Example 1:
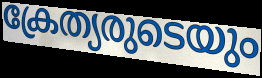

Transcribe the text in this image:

ക്രേത്യരുടെയും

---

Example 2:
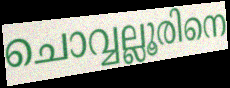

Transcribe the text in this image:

ചൊവ്വല്ലൂരിനെ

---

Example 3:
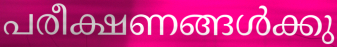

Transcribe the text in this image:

പരീക്ഷണങ്ങൾക്കു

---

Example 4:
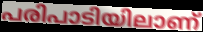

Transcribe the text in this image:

പരിപാടിയിലാണ്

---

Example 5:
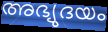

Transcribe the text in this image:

അഭ്യുദയം